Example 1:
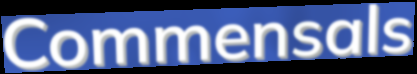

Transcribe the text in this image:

Commensals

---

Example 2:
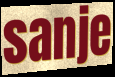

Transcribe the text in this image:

sanje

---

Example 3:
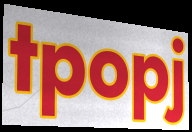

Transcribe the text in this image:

tpopj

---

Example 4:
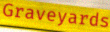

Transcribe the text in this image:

Graveyards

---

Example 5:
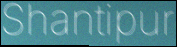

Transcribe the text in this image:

Shantipur